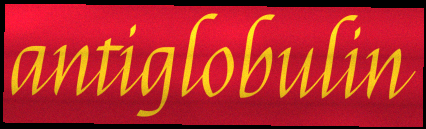
antiglobulin